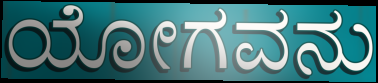
ಯೋಗವನು